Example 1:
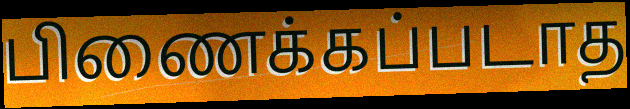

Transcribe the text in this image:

பிணைக்கப்படாத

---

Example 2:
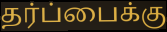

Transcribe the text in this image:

தர்ப்பைக்கு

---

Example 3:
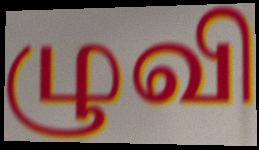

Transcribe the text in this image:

ழுவி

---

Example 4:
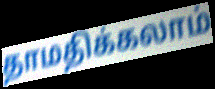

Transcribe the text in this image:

தாமதிக்கலாம்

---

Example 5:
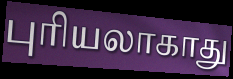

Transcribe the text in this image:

புரியலாகாது